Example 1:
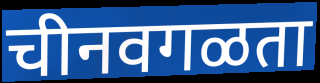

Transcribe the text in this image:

चीनवगळता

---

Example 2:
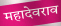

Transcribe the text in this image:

महादेवराव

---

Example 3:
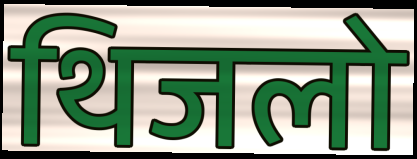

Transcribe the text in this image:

थिजलो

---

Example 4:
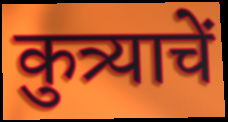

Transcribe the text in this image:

कुत्र्याचें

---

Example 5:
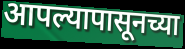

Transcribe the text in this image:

आपल्यापासूनच्या